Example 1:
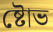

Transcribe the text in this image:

ষ্টোভ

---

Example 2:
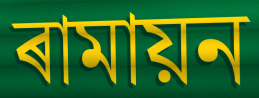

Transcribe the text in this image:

ৰামায়ন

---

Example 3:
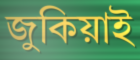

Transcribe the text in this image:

জুকিয়াই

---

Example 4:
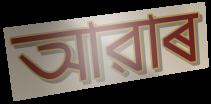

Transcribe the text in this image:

আৱাৰ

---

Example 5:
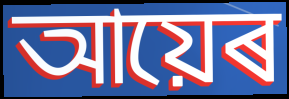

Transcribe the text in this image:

আয়েৰ